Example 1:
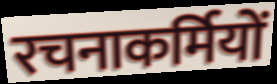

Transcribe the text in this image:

रचनाकर्मियों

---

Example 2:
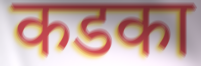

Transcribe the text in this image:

कडका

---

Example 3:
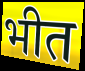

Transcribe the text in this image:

भीत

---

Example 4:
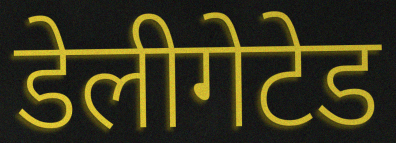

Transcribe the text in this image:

डेलीगेटेड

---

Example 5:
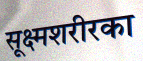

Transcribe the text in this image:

सूक्ष्मशरीरका